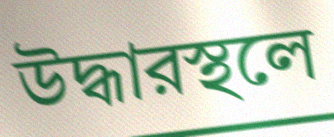
উদ্ধারস্থলে